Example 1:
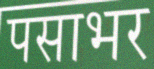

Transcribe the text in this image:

पसाभर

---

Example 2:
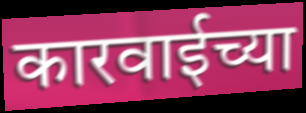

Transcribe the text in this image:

कारवाईच्या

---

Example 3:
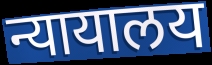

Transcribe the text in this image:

न्यायालय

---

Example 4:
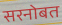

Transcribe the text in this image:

सरनोबत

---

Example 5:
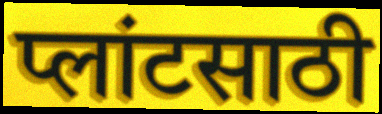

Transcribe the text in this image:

प्लांटसाठी